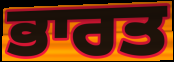
ਭਾਰਤ